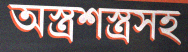
অস্ত্রশস্ত্রসহ